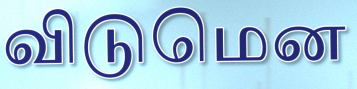
விடுமென